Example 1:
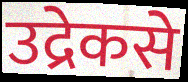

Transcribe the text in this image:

उद्रेकसे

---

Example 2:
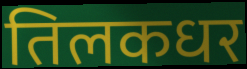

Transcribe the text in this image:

तिलकधर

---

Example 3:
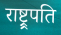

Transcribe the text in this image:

राष्ट्र्रपति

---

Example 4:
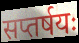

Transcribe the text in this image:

सप्तर्षयः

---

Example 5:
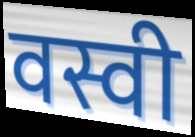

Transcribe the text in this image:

वस्वी